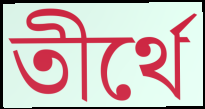
তীর্থে